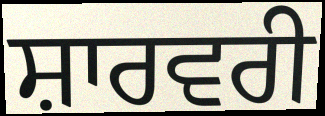
ਸ਼ਾਰਵਰੀ